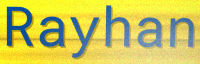
Rayhan